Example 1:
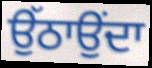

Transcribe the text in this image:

ਉੱਠਾਉਂਦਾ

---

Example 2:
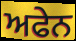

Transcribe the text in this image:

ਅਫੇਨ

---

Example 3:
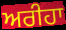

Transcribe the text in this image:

ਅਰੀਹਾ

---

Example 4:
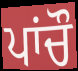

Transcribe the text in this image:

ਪਾਂਚੌ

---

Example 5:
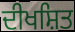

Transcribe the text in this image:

ਦੀਖਸ਼ਿਤ